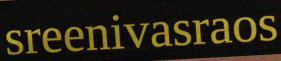
sreenivasraos